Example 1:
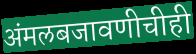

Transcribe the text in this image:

अंमलबजावणीचीही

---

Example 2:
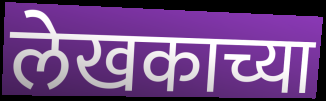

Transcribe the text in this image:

लेखकाच्या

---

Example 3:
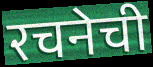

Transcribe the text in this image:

रचनेची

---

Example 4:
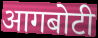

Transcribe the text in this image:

आगबोटी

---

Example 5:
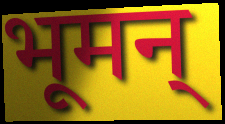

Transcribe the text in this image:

भूमन्